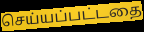
செய்யப்பட்டதை